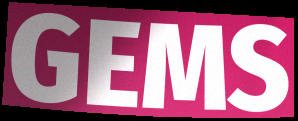
GEMS